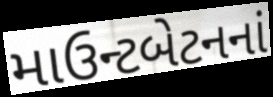
માઉન્ટબેટનનાં